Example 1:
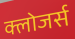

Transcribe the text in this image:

क्लोजर्स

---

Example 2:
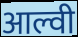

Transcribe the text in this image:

आल्वी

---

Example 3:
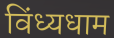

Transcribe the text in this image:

विंध्यधाम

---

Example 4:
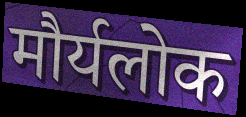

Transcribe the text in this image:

मौर्यलोक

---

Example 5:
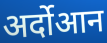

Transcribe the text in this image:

अर्दोआन